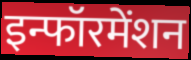
इन्फॉरमेंशन